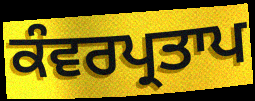
ਕੰਵਰਪ੍ਰਤਾਪ